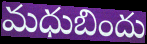
మధుబిందు